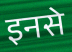
इनसे